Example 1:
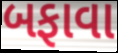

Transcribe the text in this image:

બફાવા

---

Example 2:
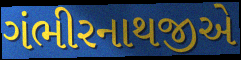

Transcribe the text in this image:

ગંભીરનાથજીએ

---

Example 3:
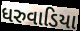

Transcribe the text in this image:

ધરુવાડિયા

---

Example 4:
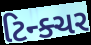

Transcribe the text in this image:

ટિન્ક્ચર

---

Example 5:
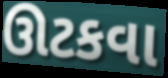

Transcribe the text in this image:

ઊટકવા